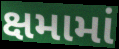
ક્ષમામાં